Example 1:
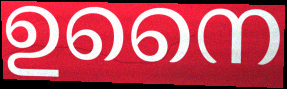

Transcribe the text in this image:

ഉനൈ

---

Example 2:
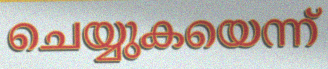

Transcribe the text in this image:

ചെയ്യുകയെന്ന്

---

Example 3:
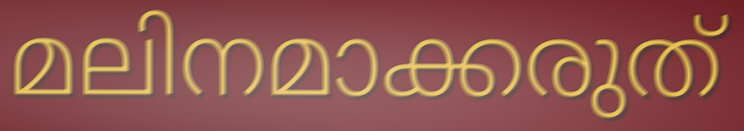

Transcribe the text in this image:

മലിനമാക്കരുത്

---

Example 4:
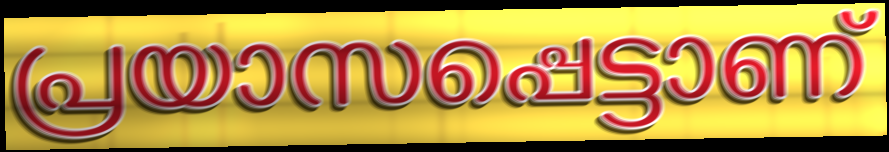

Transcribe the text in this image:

പ്രയാസപ്പെട്ടാണ്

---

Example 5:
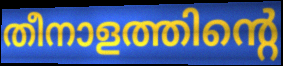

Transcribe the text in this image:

തീനാളത്തിന്റെ